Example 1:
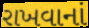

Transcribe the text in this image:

રાખવાનાં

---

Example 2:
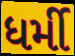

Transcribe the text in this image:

ધર્મી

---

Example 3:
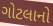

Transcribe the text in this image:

ગોટલાનો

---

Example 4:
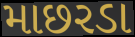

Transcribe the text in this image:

માછરડા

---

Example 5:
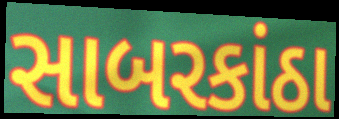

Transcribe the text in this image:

સાબરકાંઠા